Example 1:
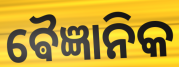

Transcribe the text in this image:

ଵୈଜ୍ଞାନିକ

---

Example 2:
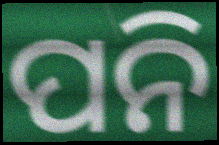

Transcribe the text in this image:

ପନି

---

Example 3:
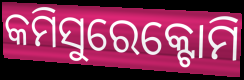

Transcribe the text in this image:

କମିସୁରେକ୍ଟୋମି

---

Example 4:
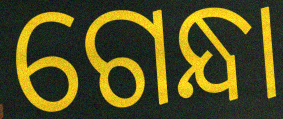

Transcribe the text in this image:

ଗେନ୍ଧା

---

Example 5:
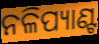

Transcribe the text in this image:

ନଳିପ୍ୟାଣ୍ଟ